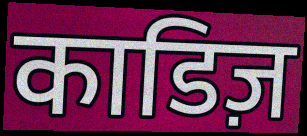
काडिज़